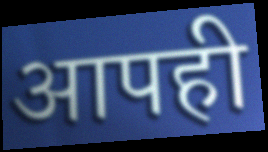
आपही